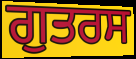
ਗੁਤਰਸ